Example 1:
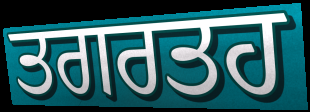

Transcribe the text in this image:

ਤਗਰਤਹ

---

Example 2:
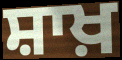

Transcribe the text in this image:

ਸ਼ਾਖ਼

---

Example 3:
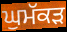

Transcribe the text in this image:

ਘੁਮੱਕਡ਼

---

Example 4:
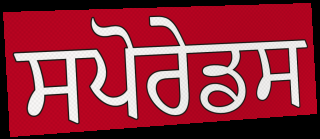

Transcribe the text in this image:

ਸਪੋਰੇਡਸ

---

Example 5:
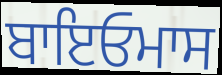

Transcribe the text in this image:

ਬਾਇਓਮਾਸ